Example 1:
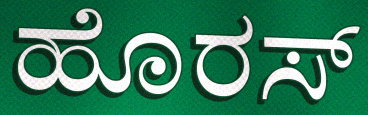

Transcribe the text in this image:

ಹೊರಸ್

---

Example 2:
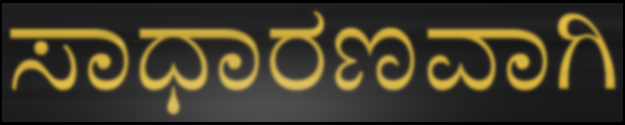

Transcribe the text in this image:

ಸಾಧಾರಣವಾಗಿ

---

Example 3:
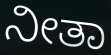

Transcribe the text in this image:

ನೀತಾ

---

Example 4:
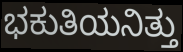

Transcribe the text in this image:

ಭಕುತಿಯನಿತ್ತು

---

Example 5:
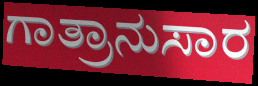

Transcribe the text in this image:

ಗಾತ್ರಾನುಸಾರ